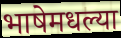
भाषेमधल्या